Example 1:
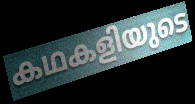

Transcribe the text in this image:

കഥകളിയുടെ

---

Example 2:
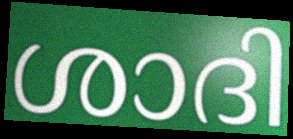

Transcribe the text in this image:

ശാദി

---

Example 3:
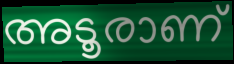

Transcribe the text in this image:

അടൂരാണ്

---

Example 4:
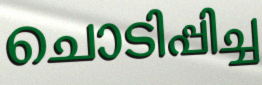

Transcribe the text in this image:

ചൊടിപ്പിച്ച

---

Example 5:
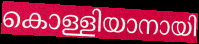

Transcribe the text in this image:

കൊള്ളിയാനായി